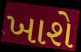
ખાશે